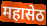
महासेठ